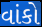
વાંકો